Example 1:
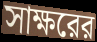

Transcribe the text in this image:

সাক্ষরের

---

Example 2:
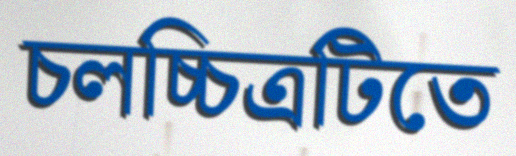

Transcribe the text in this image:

চলচ্চিত্রটিতে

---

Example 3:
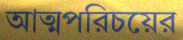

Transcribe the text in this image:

আত্মপরিচয়ের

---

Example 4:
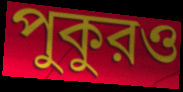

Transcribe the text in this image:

পুকুরও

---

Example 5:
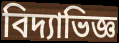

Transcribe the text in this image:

বিদ্যাভিজ্ঞ